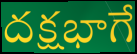
దక్షభాగే